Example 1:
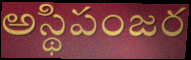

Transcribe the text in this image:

అస్థిపంజర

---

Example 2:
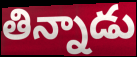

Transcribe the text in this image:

తిన్నాడు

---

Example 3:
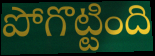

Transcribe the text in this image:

పోగొట్టింది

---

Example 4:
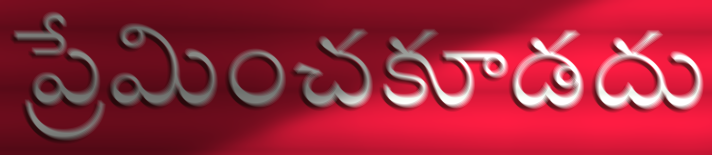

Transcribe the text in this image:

ప్రేమించకూడదు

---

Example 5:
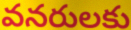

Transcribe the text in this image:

వనరులకు